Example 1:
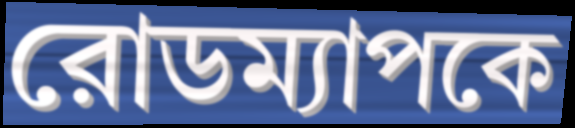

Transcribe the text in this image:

রোডম্যাপকে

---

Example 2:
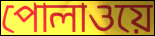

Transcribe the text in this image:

পোলাওয়ে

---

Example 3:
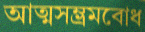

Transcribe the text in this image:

আত্মসম্ভ্রমবোধ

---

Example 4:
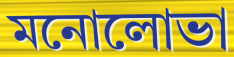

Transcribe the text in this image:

মনোলোভা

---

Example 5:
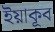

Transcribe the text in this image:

ইয়াকূব